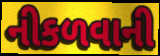
નીકળવાની